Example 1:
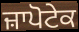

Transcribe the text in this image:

ਜ਼ਾਪੋਟੇਕ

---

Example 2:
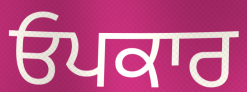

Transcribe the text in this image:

ਓਪਕਾਰ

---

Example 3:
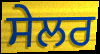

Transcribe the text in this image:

ਸੇਲਰ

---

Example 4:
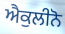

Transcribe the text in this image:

ਐਕੁਲੀਨੋ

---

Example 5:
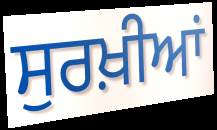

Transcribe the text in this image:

ਸੁਰਖ਼ੀਆਂ